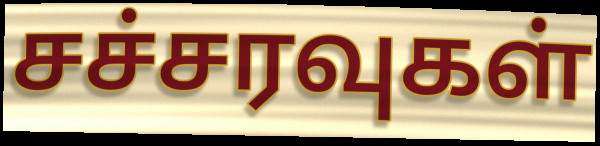
சச்சரவுகள்